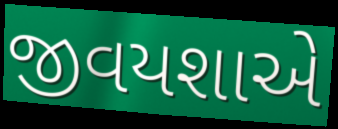
જીવયશાએ